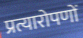
प्रत्यारोपणों